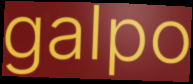
galpo